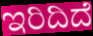
ಇರಿದಿದೆ